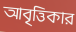
আবৃত্তিকার